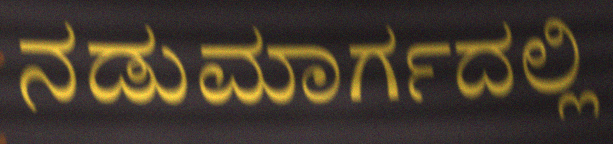
ನಡುಮಾರ್ಗದಲ್ಲಿ